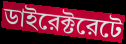
ডাইরেক্টরেটে